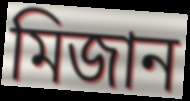
মিজান